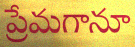
ప్రేమగానూ